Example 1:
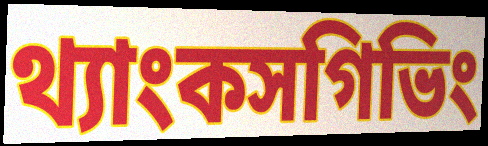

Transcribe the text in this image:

থ্যাংকসগিভিং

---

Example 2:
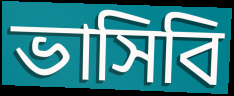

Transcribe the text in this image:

ভাসিবি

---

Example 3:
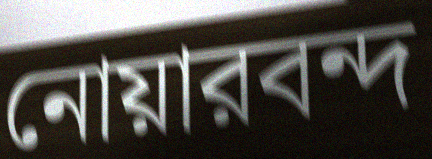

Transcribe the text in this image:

নোয়ারবন্দ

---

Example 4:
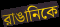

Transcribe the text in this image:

রাঙানিকে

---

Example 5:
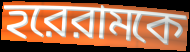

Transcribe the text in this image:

হরেরামকে